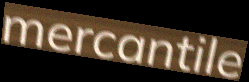
mercantile